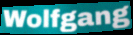
Wolfgang